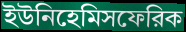
ইউনিহেমিসফেরিক